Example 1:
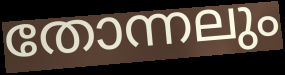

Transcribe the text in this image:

തോന്നലും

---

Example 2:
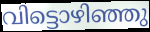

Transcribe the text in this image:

വിട്ടൊഴിഞ്ഞു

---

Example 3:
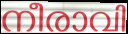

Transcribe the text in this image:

നീരാവി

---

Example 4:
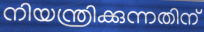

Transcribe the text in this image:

നിയന്ത്രിക്കുന്നതിന്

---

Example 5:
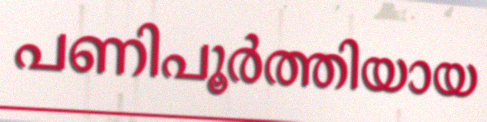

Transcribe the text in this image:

പണിപൂർത്തിയായ